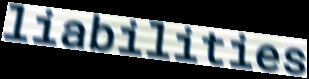
liabilities